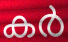
കർ